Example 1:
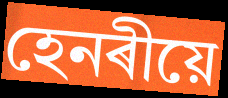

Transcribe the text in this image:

হেনৰীয়ে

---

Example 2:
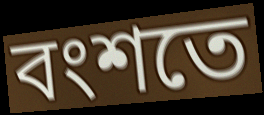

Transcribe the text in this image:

বংশতে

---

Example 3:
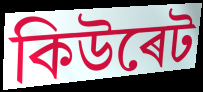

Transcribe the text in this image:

কিউৰেট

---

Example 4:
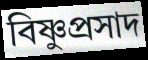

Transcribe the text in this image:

বিষ্ণুপ্ৰসাদ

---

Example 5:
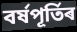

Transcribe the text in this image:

বৰ্ষপূৰ্তিৰ